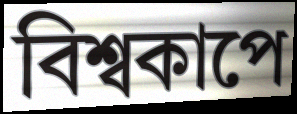
বিশ্বকাপে